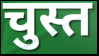
चुस्त